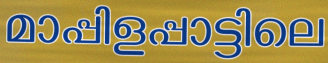
മാപ്പിളപ്പാട്ടിലെ